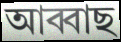
আব্বাছ